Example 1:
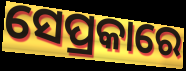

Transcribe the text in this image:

ସେପ୍ରକାରେ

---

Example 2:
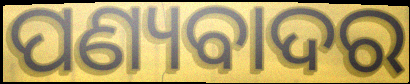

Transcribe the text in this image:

ପଣ୍ୟବାଦର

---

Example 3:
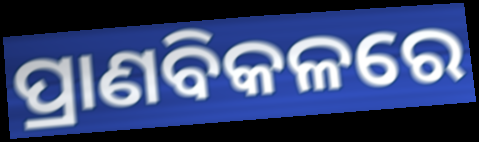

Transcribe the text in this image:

ପ୍ରାଣବିକଳରେ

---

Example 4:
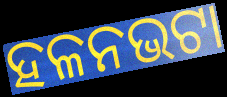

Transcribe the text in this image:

ହଳନଭଟା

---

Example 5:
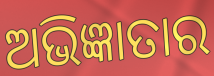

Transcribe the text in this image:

ଅଭିଜ୍ଞାତାର